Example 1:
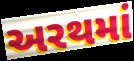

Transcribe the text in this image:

અરથમાં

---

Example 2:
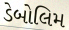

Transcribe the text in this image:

ડેબોલિમ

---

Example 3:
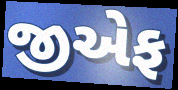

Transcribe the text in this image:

જીએફ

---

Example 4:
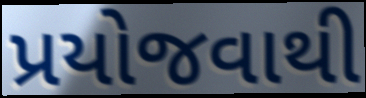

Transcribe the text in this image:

પ્રયોજવાથી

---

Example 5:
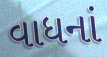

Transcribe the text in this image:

વાધનાં